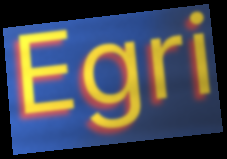
Egri